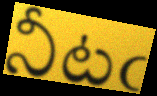
నీటఁ